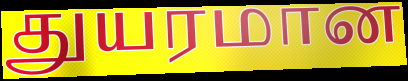
துயரமான